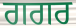
ਗਗਰ